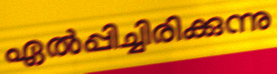
ഏൽപ്പിച്ചിരിക്കുന്നു